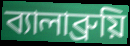
ব্যালাব্রুয়ি